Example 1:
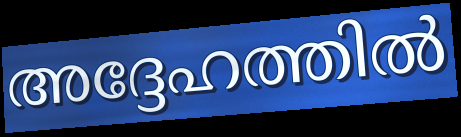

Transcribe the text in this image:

അദ്ദേഹത്തിൽ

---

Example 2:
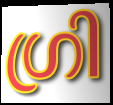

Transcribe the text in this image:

ഗ്രി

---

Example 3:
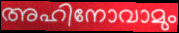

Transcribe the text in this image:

അഹിനോവാമും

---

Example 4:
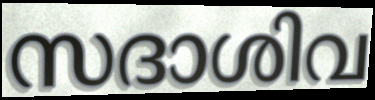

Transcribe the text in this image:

സദാശിവ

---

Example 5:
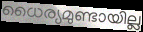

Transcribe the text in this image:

ധൈര്യമുണ്ടായില്ല